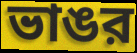
ভাঙর